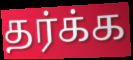
தர்க்க